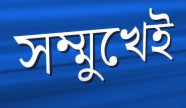
সম্মুখেই